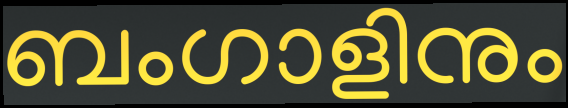
ബംഗാളിനും